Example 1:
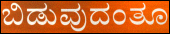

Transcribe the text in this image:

ಬಿಡುವುದಂತೂ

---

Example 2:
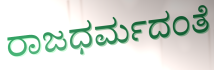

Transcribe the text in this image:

ರಾಜಧರ್ಮದಂತೆ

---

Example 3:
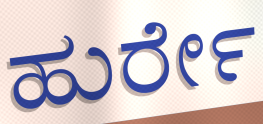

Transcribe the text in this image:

ಹುರ್ರೇ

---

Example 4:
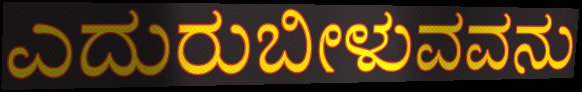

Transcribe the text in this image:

ಎದುರುಬೀಳುವವನು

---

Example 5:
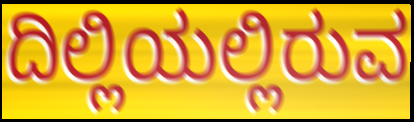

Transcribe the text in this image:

ದಿಲ್ಲಿಯಲ್ಲಿರುವ